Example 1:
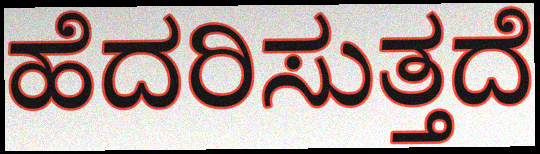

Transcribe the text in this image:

ಹೆದರಿಸುತ್ತದೆ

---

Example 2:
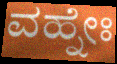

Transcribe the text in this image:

ವಹ್ನೇಃ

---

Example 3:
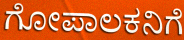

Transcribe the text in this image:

ಗೋಪಾಲಕನಿಗೆ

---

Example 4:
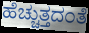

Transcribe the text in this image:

ಹೆಚ್ಚುತ್ತದಂತೆ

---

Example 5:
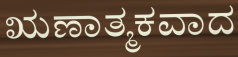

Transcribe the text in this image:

ಋಣಾತ್ಮಕವಾದ